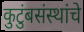
कुटुंबसंस्थांचे